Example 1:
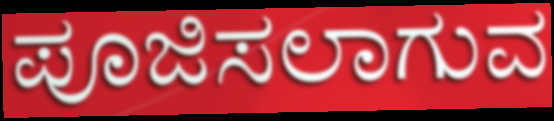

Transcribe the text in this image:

ಪೂಜಿಸಲಾಗುವ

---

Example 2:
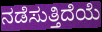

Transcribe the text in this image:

ನಡೆಸುತ್ತಿದೆಯೆ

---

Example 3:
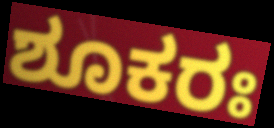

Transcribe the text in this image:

ಶೂಕರಃ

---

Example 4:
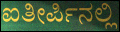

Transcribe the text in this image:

ಐತೀರ್ಪಿನಲ್ಲಿ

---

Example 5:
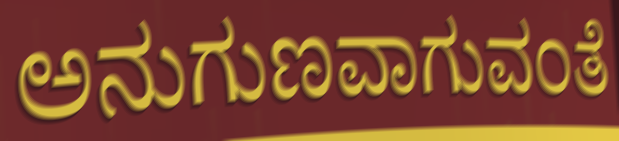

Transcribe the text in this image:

ಅನುಗುಣವಾಗುವಂತೆ